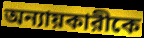
অন্যায়কারীকে